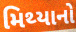
મિથ્યાનો